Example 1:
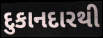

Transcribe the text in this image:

દુકાનદારથી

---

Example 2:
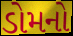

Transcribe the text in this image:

ડોમનો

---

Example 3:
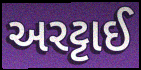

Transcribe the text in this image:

અરટ્ટાઈ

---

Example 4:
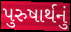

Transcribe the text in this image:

પુરુષાર્થનું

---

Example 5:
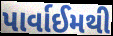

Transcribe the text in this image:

પાર્વાઈમથી